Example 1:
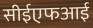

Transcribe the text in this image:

सीईएफआई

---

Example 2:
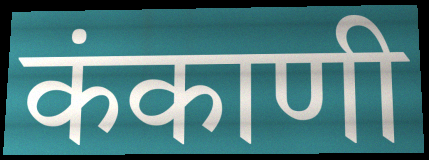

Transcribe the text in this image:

कंकाणी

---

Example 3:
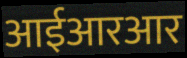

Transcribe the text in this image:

आईआरआर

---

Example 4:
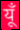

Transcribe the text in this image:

यूँ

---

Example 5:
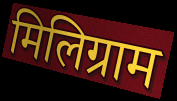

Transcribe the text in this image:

मिलिग्राम